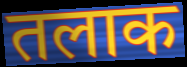
तलाक